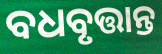
ବଧବୃତ୍ତାନ୍ତ